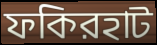
ফকিরহাট